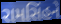
રામસિંહને